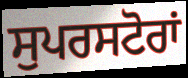
ਸੁਪਰਸਟੋਰਾਂ